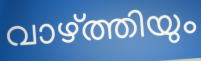
വാഴ്ത്തിയും